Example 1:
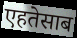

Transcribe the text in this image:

एहतेसाब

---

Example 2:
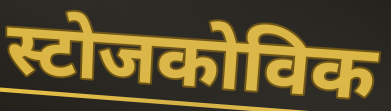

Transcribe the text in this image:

स्टोजकोविक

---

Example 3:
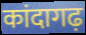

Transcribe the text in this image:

कांदागढ़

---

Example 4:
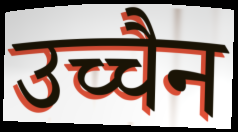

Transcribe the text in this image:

उच्चैन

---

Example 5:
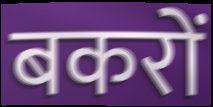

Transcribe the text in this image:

बकरों